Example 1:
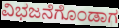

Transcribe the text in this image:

ವಿಭಜನೆಗೊಂಡಾಗ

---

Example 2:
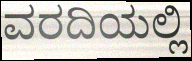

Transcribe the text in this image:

ವರದಿಯಲ್ಲಿ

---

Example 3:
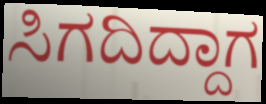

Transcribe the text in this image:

ಸಿಗದಿದ್ದಾಗ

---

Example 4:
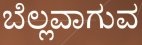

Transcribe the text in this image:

ಬೆಲ್ಲವಾಗುವ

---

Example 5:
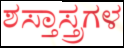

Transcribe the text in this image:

ಶಸ್ತಾಸ್ತ್ರಗಳ